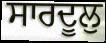
ਸਾਰਦੂਲੁ